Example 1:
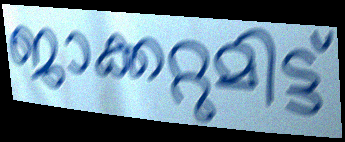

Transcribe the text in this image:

ജാക്കറ്റുമിട്ട്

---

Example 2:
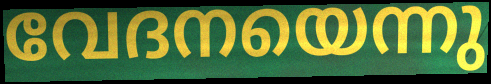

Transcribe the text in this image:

വേദനയെന്നു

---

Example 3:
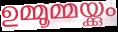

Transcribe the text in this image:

ഉമ്മൂമ്മയ്ക്കും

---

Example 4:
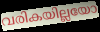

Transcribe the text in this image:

വരികയില്ലയോ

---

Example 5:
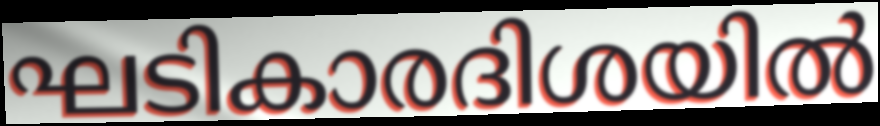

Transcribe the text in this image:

ഘടികാരദിശയിൽ